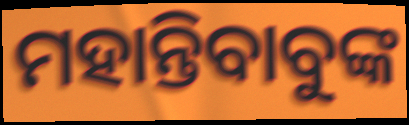
ମହାନ୍ତିବାବୁଙ୍କ